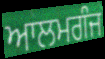
ਆਲਮਗੰਜ